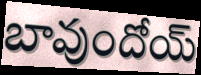
బావుందోయ్